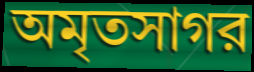
অমৃতসাগর